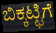
ಬಿಕ್ಕಟ್ಟಿಗೆ